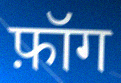
फ़ॉग